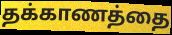
தக்காணத்தை